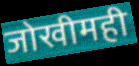
जोखीमही